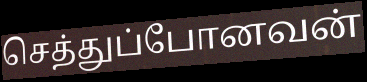
செத்துப்போனவன்